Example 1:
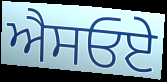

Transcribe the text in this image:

ਐਸਓਏ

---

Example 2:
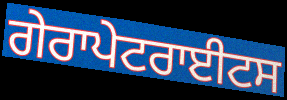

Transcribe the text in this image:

ਗੇਰਾਪੇਟਰਾਈਟਸ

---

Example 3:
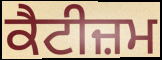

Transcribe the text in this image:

ਕੈਟੀਜ਼ਮ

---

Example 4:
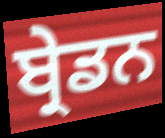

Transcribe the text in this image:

ਬ੍ਰੇਡਨ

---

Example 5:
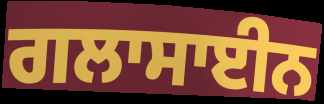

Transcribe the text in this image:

ਗਲਾਸਾਈਨ